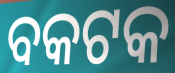
ବକଟକ